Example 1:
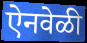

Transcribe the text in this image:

ऐनवेळी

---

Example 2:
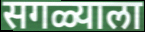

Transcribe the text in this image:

सगळ्याला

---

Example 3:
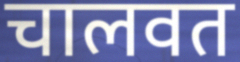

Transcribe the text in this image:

चालवत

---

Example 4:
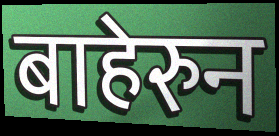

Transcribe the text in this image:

बाहेरुन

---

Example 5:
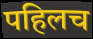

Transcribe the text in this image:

पहिलच